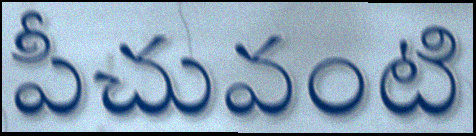
పీచువంటి